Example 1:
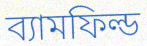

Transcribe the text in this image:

ব্যামফিল্ড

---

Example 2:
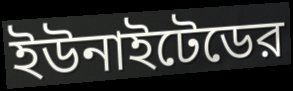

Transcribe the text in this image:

ইউনাইটেডের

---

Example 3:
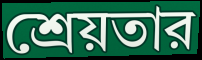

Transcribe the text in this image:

শ্রেয়তার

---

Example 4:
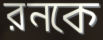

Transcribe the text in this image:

রনকে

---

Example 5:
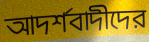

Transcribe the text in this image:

আদর্শবাদীদের